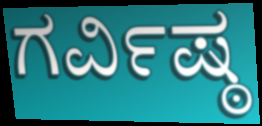
ಗರ್ವಿಷ್ಠ